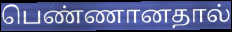
பெண்ணானதால்